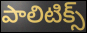
పాలిటిక్స్